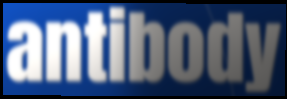
antibody